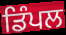
ਡਿੰਪਲ